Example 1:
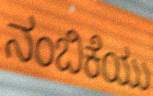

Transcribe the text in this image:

ನಂಬಿಕೆಯು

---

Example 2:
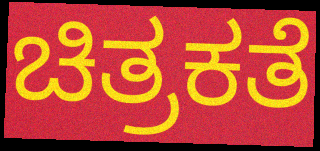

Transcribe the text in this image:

ಚಿತ್ರಕತೆ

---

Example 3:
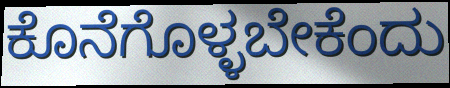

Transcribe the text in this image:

ಕೊನೆಗೊಳ್ಳಬೇಕೆಂದು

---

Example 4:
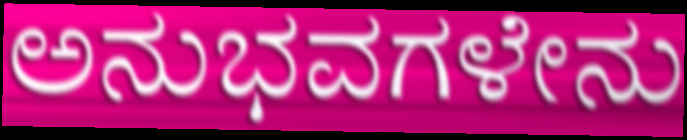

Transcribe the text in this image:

ಅನುಭವಗಳೇನು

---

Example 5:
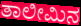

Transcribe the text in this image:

ತಾಲೀಮಿನ